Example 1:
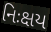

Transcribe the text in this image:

નિઃક્ષય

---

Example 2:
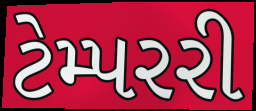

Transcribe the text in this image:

ટેમ્પરરી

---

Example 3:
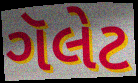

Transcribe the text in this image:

ગૅલેટ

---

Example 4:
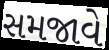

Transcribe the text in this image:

સમજાવે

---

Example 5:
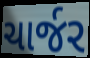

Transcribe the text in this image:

ચાર્જર